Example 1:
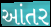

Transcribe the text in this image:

આંતર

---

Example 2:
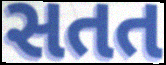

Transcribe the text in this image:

સતત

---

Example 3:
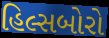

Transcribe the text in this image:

હિલ્સબોરો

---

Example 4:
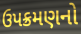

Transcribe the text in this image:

ઉપક્રમણનો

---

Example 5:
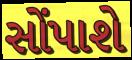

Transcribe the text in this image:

સોંપાશે